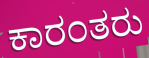
ಕಾರಂತರು